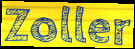
Zoller